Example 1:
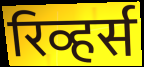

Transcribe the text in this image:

रिव्हर्स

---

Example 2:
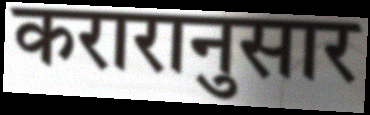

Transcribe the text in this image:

करारानुसार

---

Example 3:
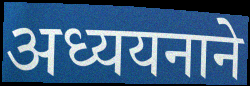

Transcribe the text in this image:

अध्ययनाने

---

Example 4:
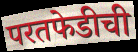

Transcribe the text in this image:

परतफेडीची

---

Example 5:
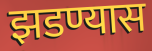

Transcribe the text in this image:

झडण्यास